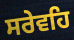
ਸਰੇਵਹਿ